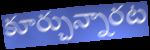
కూర్చున్నారట